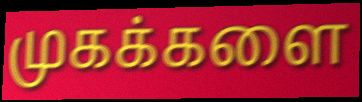
முகக்களை